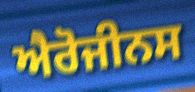
ਐਰੋਜੀਨਸ